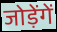
जोड़ेंगें